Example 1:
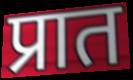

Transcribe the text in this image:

प्रात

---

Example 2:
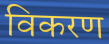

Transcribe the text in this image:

विकरण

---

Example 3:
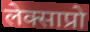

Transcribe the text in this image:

लेक्साप्रो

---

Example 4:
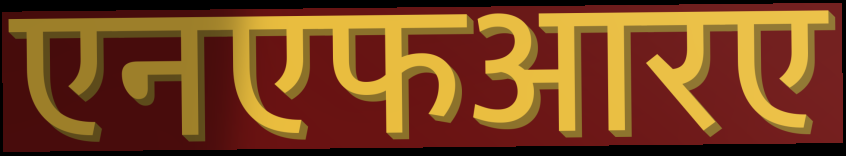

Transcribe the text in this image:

एनएफआरए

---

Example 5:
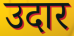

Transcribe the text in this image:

उदार